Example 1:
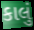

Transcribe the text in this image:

કાલું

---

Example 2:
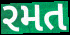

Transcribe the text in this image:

રમત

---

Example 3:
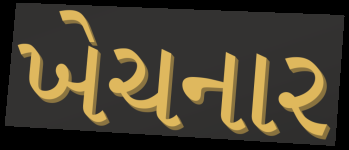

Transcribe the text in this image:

ખેચનાર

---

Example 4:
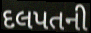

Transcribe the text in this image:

દલપતની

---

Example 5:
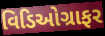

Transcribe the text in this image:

વિડિઓગ્રાફર